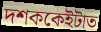
দশককেইটাত